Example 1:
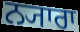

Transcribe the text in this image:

ਨ੍ਯਾਰਾ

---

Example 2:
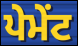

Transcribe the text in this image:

ਪੇਮੇਂਟ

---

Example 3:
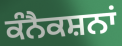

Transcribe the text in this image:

ਕੰਨੈਕਸ਼ਨਾਂ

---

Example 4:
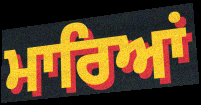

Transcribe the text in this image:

ਮਾਰਿਆਂ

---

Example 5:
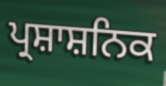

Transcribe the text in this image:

ਪ੍ਰਸ਼ਾਸ਼ਨਿਕ